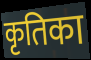
कृतिका